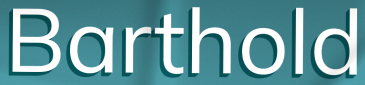
Barthold